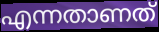
എന്നതാണത്